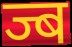
ज्ब